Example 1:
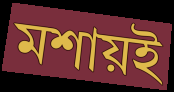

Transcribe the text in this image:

মশায়ই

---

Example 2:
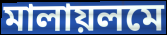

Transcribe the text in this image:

মালায়লমে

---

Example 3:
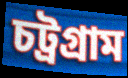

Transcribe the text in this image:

চট্রগ্রাম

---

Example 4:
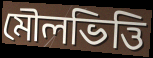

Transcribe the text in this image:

মৌলভিত্তি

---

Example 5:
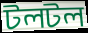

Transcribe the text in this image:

টলটল